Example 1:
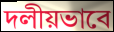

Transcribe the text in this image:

দলীয়ভাবে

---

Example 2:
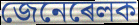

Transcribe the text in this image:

জেনেৰেলক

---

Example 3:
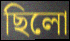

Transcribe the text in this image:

ছিলো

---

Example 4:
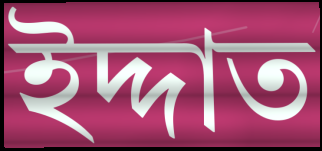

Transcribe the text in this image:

ইদ্দাত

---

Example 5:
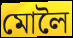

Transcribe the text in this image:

মোলৈ